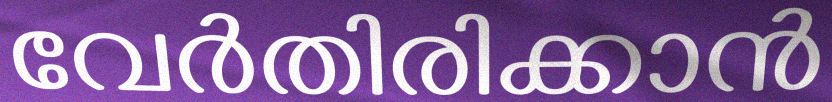
വേർതിരിക്കാൻ